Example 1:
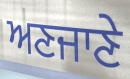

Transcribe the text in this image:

ਅਣਜਾਣੇ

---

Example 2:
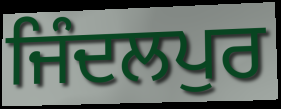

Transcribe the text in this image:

ਜਿੰਦਲਪੁਰ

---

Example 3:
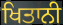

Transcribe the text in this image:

ਖਿਤਾਨੀ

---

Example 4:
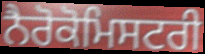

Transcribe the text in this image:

ਨੈਰੋਕੋਮਿਸਟਰੀ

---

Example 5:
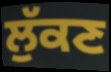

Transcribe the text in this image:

ਲੁੱਕਣ